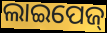
ଲାଇପେଜ୍